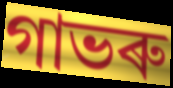
গাভৰু